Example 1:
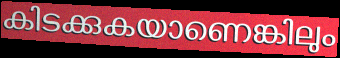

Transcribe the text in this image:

കിടക്കുകയാണെങ്കിലും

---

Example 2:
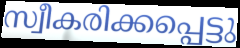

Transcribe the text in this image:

സ്വീകരിക്കപ്പെട്ടു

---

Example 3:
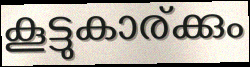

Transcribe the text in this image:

കൂട്ടുകാര്ക്കും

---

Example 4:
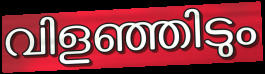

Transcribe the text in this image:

വിളഞ്ഞിടും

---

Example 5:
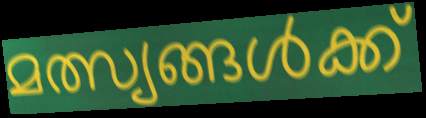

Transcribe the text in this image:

മത്സ്യങ്ങൾക്ക്